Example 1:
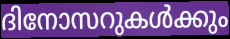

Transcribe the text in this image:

ദിനോസറുകൾക്കും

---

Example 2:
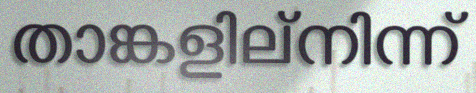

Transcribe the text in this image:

താങ്കളില്നിന്ന്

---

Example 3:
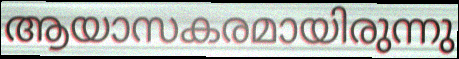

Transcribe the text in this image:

ആയാസകരമായിരുന്നു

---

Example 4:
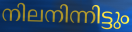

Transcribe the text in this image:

നിലനിന്നിട്ടും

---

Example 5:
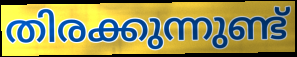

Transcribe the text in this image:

തിരക്കുന്നുണ്ട്